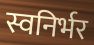
स्वनिर्भर